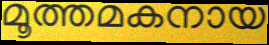
മൂത്തമകനായ